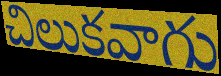
చిలుకవాగు